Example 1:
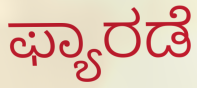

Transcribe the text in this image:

ಫ್ಯಾರಡೆ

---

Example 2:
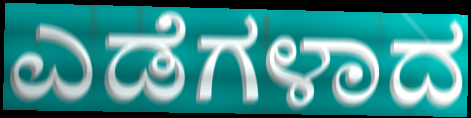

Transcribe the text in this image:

ಎಡೆಗಳಾದ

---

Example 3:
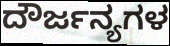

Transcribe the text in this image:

ದೌರ್ಜನ್ಯಗಳ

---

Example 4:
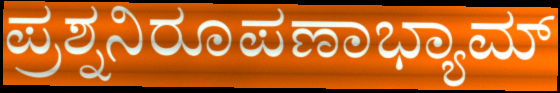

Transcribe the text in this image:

ಪ್ರಶ್ನನಿರೂಪಣಾಭ್ಯಾಮ್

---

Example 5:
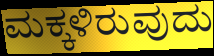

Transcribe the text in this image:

ಮಕ್ಕಳಿರುವುದು